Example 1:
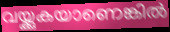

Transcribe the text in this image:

വയ്ക്കുകയാണെങ്കിൽ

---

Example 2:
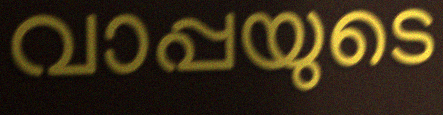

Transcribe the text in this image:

വാപ്പയുടെ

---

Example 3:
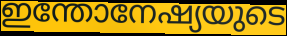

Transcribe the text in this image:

ഇന്തോനേഷ്യയുടെ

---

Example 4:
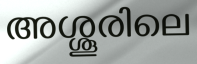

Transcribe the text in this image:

അശ്ശൂരിലെ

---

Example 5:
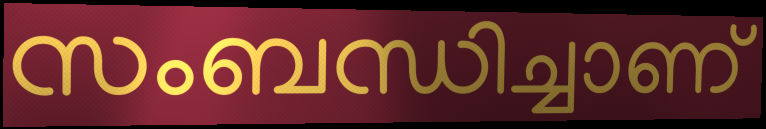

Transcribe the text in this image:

സംബന്ധിച്ചാണ്